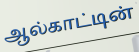
ஆல்காட்டின்